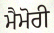
ਮੈਮੋਰੀ